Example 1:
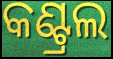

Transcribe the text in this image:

କଣ୍ଟ୍ରଲ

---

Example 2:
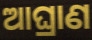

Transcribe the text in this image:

ଆଘ୍ରାଣ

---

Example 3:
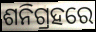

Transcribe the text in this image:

ଶନିଗ୍ରହରେ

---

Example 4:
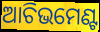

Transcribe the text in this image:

ଆଚିଭମେଣ୍ଟ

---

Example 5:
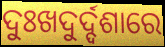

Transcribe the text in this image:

ଦୁଃଖଦୁର୍ଦ୍ଦଶାରେ